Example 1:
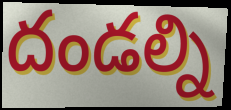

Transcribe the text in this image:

దండల్ని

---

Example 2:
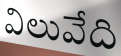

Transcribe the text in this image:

విలువేది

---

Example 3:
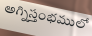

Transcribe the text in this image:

అగ్నిస్తంభములో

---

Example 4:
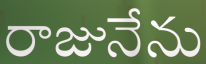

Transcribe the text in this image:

రాజునేను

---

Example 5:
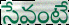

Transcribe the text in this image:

సేవంటే